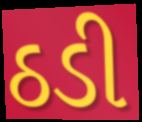
ઠડી